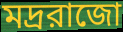
মদ্ররাজো